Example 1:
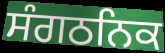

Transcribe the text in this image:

ਸੰਗਠਨਿਕ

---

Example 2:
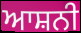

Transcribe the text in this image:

ਆਸ਼ਨੀ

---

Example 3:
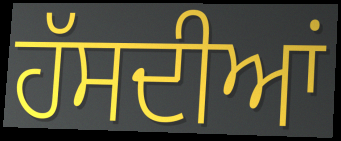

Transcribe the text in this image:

ਹੱਸਦੀਆਂ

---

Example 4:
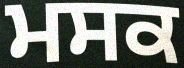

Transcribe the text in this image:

ਮਸਕ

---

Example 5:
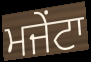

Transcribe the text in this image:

ਮਜੇਂਟਾ